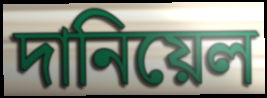
দানিয়েল